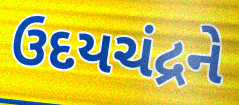
ઉદયચંદ્રને